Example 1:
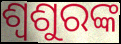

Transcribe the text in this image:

ଶ୍ୱଶୁରଙ୍କ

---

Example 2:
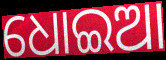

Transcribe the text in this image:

ଧୋଇଆ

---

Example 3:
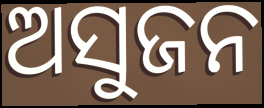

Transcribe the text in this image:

ଅସୁଜନ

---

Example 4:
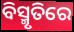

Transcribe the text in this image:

ବିସ୍ମୃତିରେ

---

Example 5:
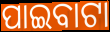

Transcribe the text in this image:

ପାଇବାଟା